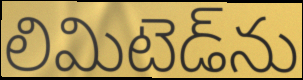
లిమిటెడ్‌ను